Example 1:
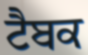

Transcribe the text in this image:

ਟੈਬਕ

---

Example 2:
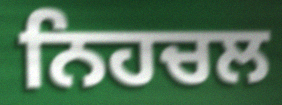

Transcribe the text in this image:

ਨਿਹਚਲ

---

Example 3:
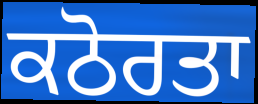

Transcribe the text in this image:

ਕਠੋਰਤਾ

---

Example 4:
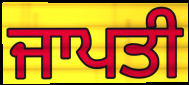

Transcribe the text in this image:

ਜਾਪਤੀ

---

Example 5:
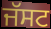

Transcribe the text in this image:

ਜੱਸਟ